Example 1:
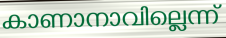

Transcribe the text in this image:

കാണാനാവില്ലെന്ന്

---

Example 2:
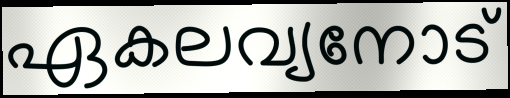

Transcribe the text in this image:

ഏകലവ്യനോട്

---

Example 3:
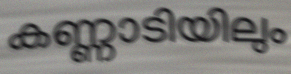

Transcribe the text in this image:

കണ്ണാടിയിലും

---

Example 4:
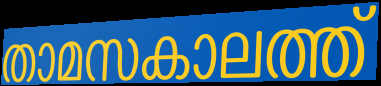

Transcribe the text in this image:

താമസകാലത്ത്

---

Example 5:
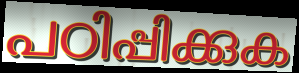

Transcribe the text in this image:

പഠിപ്പിക്കുക